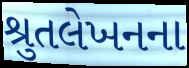
શ્રુતલેખનના